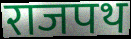
राजपथ